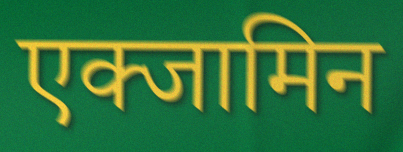
एक्जामिन